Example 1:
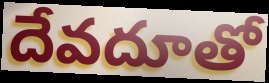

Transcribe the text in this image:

దేవదూతో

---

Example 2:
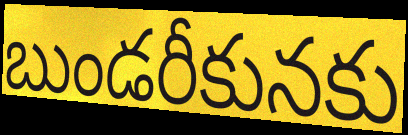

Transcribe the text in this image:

బుండరీకునకు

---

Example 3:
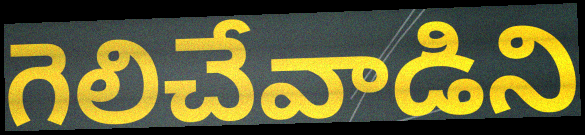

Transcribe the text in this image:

గెలిచేవాడిని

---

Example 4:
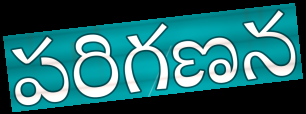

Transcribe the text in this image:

పరిగణన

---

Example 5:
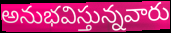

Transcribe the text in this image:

అనుభవిస్తున్నవారు